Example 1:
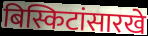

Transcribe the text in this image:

बिस्किटांसारखे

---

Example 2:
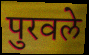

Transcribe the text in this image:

पुरवले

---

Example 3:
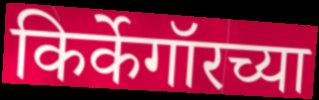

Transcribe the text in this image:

किर्केगॉरच्या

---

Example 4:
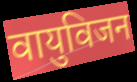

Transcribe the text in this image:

वायुविजन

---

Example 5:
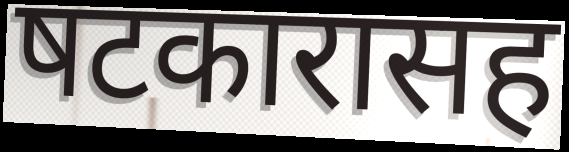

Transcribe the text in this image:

षटकारासह